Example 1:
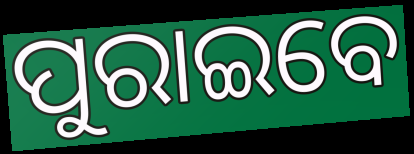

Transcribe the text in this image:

ପୁରାଇବେ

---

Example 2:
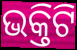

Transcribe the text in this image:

ଭକ୍ତିଟି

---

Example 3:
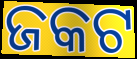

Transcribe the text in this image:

ଜକଟ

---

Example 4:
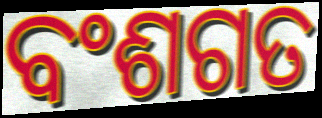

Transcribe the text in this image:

ବଂଶଗତ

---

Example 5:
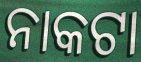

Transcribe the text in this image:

ନାକଟା